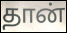
தான்